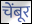
चेंबूर